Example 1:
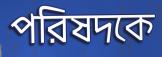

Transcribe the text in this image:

পরিষদকে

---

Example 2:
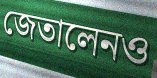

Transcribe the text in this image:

জেতালেনও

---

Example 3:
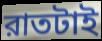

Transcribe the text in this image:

রাতটাই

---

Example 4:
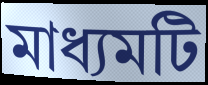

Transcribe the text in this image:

মাধ্যমটি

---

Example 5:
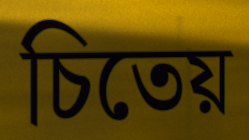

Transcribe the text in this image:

চিতেয়